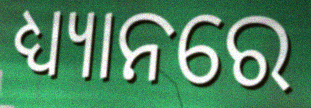
ଧ୍ୟ୍ୟାନରେ